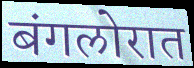
बंगलोरात